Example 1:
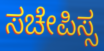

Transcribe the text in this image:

ಸಚೇಪಿಸ್ಸ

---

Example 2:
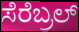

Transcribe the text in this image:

ಸೆರೆಬ್ರಲ್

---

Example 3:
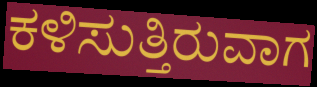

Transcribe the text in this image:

ಕಳಿಸುತ್ತಿರುವಾಗ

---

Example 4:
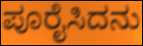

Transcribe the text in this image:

ಪೂರೈಸಿದನು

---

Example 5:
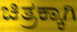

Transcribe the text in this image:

ಚಿತ್ರಕ್ಕಾಗಿ